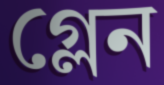
গ্লেন